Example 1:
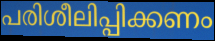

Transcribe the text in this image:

പരിശീലിപ്പിക്കണം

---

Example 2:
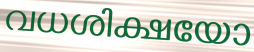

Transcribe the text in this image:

വധശിക്ഷയോ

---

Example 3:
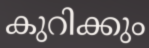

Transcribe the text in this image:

കുറിക്കും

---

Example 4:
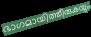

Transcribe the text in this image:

ഭാഗമായിത്തീരുകയും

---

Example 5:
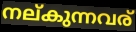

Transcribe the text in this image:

നല്കുന്നവര്